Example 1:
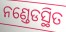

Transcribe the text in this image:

ନଣ୍ଡେଡସ୍ଥିତ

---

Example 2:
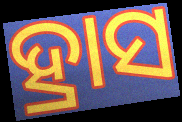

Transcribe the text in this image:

ହ୍ରାସ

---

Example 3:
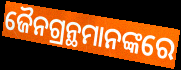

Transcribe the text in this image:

ଜୈନଗ୍ରନ୍ଥମାନଙ୍କରେ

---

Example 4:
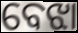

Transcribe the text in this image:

ବେଝା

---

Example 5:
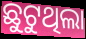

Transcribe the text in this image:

ଛୁଟୁଥିଲା